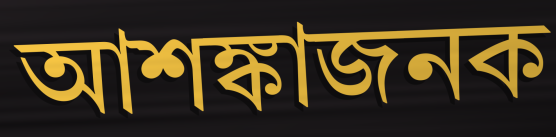
আশঙ্কাজনক